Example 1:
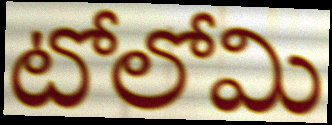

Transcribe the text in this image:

టోలోమి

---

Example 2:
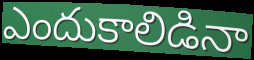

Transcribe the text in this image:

ఎందుకాలిడినా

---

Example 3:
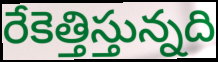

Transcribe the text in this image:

రేకెత్తిస్తున్నది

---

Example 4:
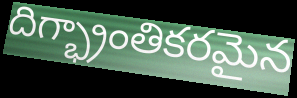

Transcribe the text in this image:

దిగ్భ్రాంతికరమైన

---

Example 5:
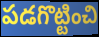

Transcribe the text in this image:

పడగొట్టించి